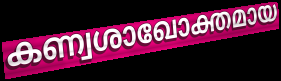
കണ്വശാഖോക്തമായ